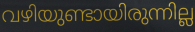
വഴിയുണ്ടായിരുന്നില്ല